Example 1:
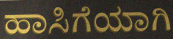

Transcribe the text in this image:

ಹಾಸಿಗೆಯಾಗಿ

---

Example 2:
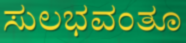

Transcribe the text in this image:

ಸುಲಭವಂತೂ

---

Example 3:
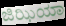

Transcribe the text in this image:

ಜಿಝಿಯಾ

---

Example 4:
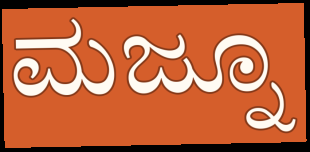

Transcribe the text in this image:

ಮಜ್ನೂ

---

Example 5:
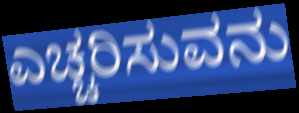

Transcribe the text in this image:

ಎಚ್ಚರಿಸುವನು